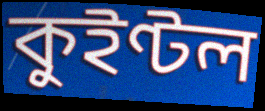
কুইণ্টল